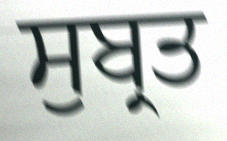
ਸੁਬ੍ਰਤ